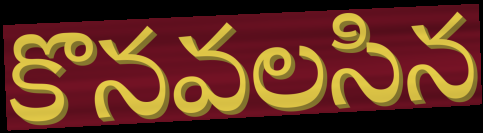
కొనవలసిన